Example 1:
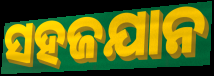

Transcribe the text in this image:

ସହଜଯାନ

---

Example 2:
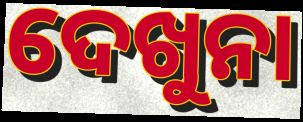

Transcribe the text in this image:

ଦେଖୁନା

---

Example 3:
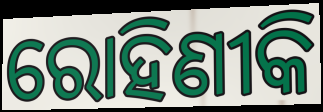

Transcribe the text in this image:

ରୋହିଣୀକି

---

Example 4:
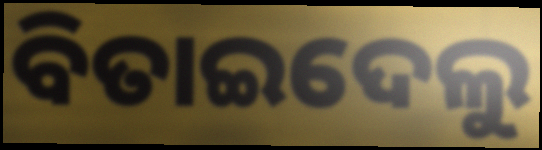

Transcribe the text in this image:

ବିତାଇଦେଲୁ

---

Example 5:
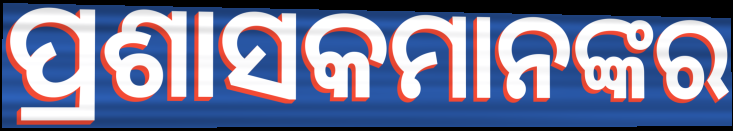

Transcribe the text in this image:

ପ୍ରଶାସକମାନଙ୍କର